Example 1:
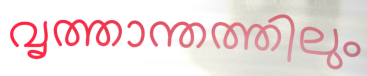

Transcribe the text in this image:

വൃത്താന്തത്തിലും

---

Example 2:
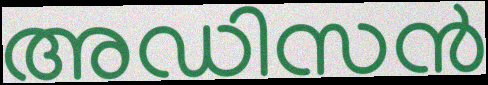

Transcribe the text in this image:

അഡിസൻ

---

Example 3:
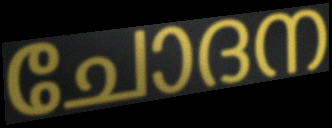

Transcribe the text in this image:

ചോദന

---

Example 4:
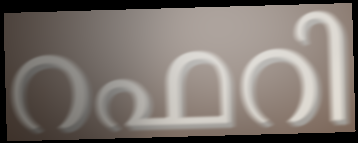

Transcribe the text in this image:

റഫറി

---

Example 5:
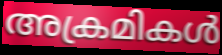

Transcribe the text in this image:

അക്രമികൾ